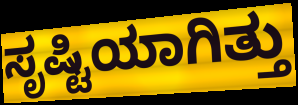
ಸೃಷ್ಟಿಯಾಗಿತ್ತು